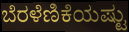
ಬೆರಳೆಣಿಕೆಯಷ್ಟು